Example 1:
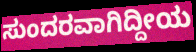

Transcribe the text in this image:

ಸುಂದರವಾಗಿದ್ದೀಯ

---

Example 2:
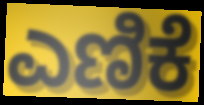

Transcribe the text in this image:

ಎಣಿಕೆ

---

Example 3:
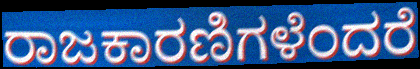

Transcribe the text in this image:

ರಾಜಕಾರಣಿಗಳೆಂದರೆ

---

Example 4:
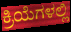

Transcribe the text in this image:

ಕ್ರಿಯೆಗಳಲ್ಲಿ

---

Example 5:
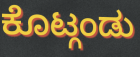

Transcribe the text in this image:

ಕೊಟ್ಗಂಡು